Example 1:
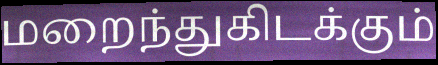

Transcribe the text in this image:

மறைந்துகிடக்கும்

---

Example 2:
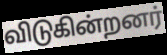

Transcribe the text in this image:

விடுகின்றனர்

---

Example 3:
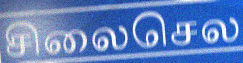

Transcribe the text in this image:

சிலைசெல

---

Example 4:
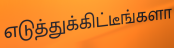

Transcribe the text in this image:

எடுத்துக்கிட்டீங்களா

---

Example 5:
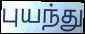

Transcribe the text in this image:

புயந்து